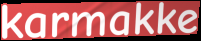
karmakke